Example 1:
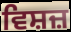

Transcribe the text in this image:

ਵਿਸ਼ਜ਼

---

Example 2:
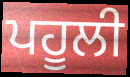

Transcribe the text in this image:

ਪਹੂਲੀ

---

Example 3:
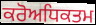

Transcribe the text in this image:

ਕਰੋਅਧਿਕਤਮ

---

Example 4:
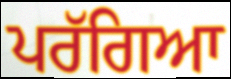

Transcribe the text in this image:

ਪਰੱਗਿਆ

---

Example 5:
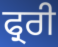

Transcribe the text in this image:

ਫ੍ਰਰੀ